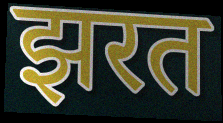
झरत